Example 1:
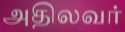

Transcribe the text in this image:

அதிலவர்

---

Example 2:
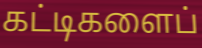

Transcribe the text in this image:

கட்டிகளைப்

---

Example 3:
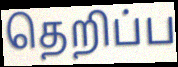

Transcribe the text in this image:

தெறிப்ப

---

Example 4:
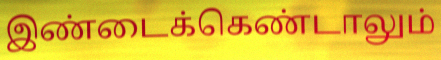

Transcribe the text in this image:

இண்டைக்கெண்டாலும்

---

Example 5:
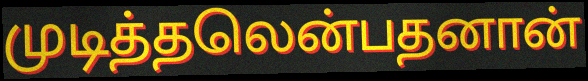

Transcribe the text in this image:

முடித்தலென்பதனான்